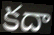
కదా